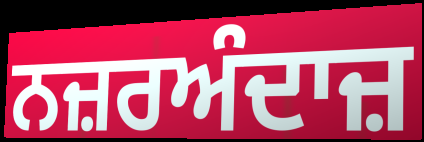
ਨਜ਼ਰਅੰਦਾਜ਼